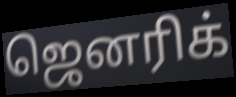
ஜெனரிக்